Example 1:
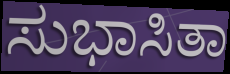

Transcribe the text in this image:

ಸುಭಾಸಿತಾ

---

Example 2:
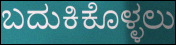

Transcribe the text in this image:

ಬದುಕಿಕೊಳ್ಳಲು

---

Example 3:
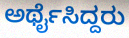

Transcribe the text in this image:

ಅರ್ಥೈಸಿದ್ದರು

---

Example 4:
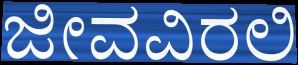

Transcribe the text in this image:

ಜೀವವಿರಲಿ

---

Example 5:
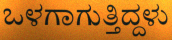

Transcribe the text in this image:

ಒಳಗಾಗುತ್ತಿದ್ದಳು